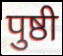
पुष्ठी